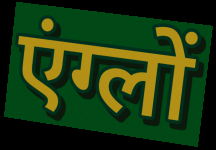
एंग्लों